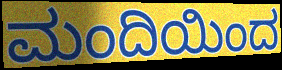
ಮಂದಿಯಿಂದ